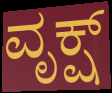
ವೃಕ್ಷ್